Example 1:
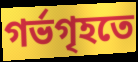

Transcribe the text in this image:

গর্ভগৃহতে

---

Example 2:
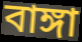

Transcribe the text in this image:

বাঙ্গা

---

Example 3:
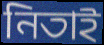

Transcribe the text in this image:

নিতাই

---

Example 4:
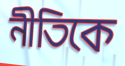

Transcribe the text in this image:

নীতিকে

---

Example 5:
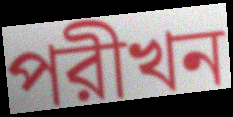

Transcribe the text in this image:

পরীখন